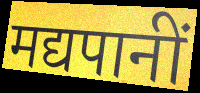
मद्यपानीं